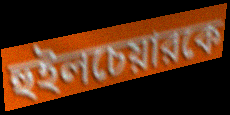
হুইলচেয়ারকে